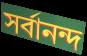
সৰ্বানন্দ